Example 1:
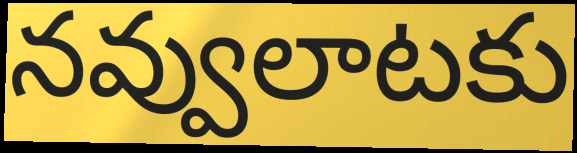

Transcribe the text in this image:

నవ్వులాటకు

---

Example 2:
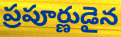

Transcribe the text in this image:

ప్రపూర్ణుడైన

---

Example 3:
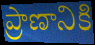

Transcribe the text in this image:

ప్రాణానికి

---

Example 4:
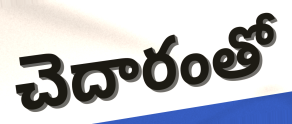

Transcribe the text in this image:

చెదారంతో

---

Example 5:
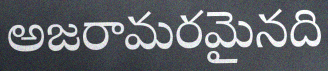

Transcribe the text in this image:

అజరామరమైనది